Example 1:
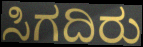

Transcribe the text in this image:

ಸಿಗದಿರು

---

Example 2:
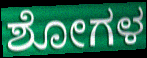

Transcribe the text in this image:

ಶೋಗಳ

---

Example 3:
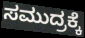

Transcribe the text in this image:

ಸಮುದ್ರಕ್ಕೆ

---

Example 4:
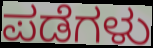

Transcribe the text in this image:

ಪಡೆಗಳು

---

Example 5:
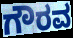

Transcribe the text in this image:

ಗೌರವ